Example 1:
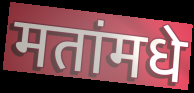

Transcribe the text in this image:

मतांमधे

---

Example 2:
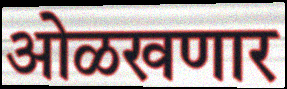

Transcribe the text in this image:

ओळखणार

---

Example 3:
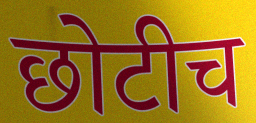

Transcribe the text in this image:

छोटीच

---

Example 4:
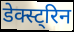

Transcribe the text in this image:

डेक्स्ट्रिन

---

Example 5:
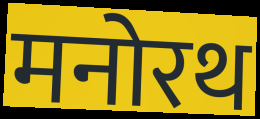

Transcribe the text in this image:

मनोरथ